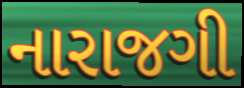
નારાજગી